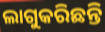
ଲାଗୁକରିଛନ୍ତି